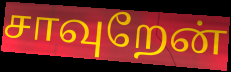
சாவுறேன்